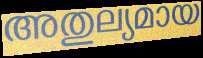
അതുല്യമായ